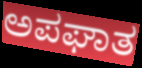
ಅಪಘಾತ